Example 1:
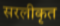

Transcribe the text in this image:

सरलीकृत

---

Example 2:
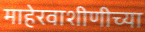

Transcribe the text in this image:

माहेरवाशीणीच्या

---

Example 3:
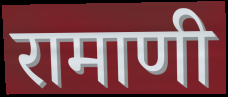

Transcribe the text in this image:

रामाणी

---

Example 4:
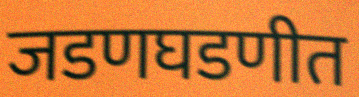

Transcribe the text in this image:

जडणघडणीत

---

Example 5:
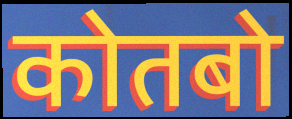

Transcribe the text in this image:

कोतबो